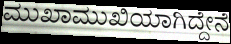
ಮುಖಾಮುಖಿಯಾಗಿದ್ದೇನೆ